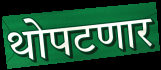
थोपटणार